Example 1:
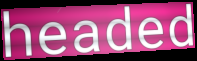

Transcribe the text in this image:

headed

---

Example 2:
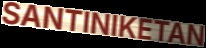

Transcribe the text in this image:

SANTINIKETAN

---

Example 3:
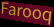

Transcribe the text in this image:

Farooq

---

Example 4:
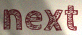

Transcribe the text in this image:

next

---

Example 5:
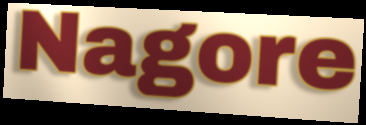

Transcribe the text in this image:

Nagore